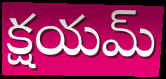
క్షయమ్